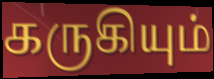
கருகியும்